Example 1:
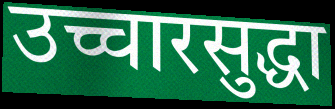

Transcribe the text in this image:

उच्चारसुद्धा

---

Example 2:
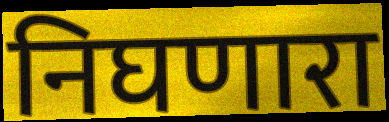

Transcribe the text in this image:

निघणारा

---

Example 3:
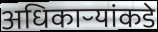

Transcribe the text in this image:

अधिकाऱ्यांकडे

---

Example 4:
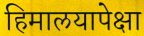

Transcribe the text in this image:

हिमालयापेक्षा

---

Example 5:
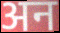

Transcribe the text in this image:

अन